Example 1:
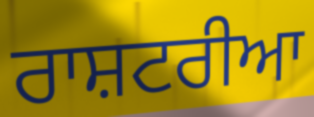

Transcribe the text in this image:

ਰਾਸ਼ਟਰੀਆ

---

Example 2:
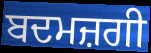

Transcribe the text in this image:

ਬਦਮਜ਼ਗੀ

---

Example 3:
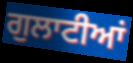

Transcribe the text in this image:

ਗੁਲਾਟੀਆਂ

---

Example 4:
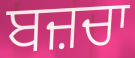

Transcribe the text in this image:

ਬਜ਼ਚਾ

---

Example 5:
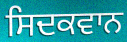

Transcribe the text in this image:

ਸਿਦਕਵਾਨ